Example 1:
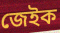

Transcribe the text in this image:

জেইক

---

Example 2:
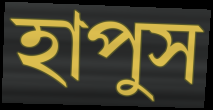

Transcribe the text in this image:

হাপুস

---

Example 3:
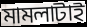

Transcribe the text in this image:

মামলাটাই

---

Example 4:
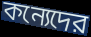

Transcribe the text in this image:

কন্যেদের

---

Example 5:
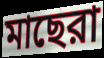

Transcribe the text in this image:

মাছেরা